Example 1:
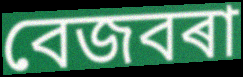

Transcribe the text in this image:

বেজবৰা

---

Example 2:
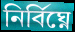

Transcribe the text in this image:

নিৰ্বিঘ্নে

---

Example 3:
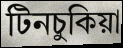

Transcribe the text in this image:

টিনচুকিয়া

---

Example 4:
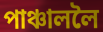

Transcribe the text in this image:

পাঞ্চাললৈ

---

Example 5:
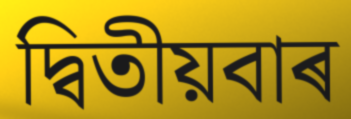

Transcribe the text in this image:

দ্বিতীয়বাৰ